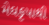
મેઘકૃપાથી